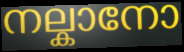
നല്കാനോ